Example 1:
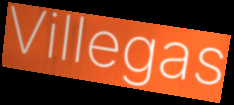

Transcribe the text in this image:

Villegas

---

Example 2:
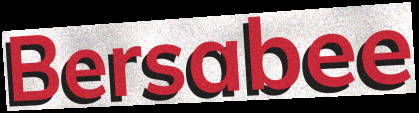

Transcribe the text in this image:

Bersabee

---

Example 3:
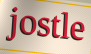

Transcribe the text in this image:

jostle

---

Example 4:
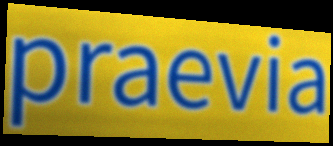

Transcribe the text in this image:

praevia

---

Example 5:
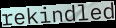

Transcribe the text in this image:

rekindled